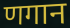
णगान